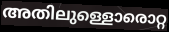
അതിലുള്ളൊരൊറ്റ